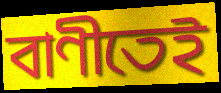
বাণীতেই